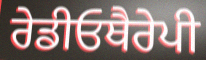
ਰੇਡੀਓਥੈਰੇਪੀ